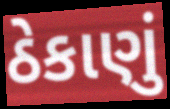
ઠેકાણું